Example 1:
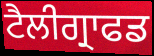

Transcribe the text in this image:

ਟੈਲੀਗ੍ਰਾਫਡ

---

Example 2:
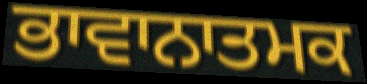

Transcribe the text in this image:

ਭਾਵਾਨਾਤਮਕ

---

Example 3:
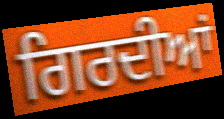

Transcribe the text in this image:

ਗਿਰਦੀਆਂ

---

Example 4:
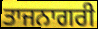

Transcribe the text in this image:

ਤਾਜਨਾਗਰੀ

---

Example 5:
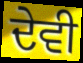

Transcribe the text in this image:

ਦੇਵੀ